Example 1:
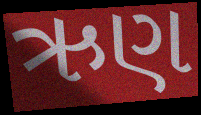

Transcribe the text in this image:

ઋણ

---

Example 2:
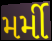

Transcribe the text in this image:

મર્મી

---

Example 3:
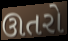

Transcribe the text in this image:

ઊતરો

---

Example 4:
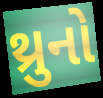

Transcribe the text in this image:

થ્રુનો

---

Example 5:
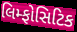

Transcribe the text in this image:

લિમ્ફોસિટિક